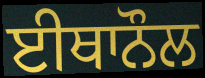
ਈਥਾਨੌਲ